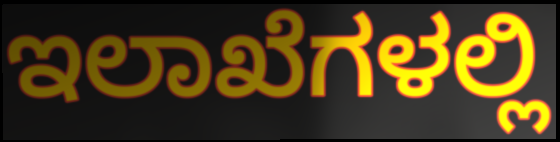
ಇಲಾಖೆಗಳಲ್ಲಿ